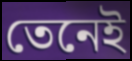
তেনেই